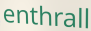
enthrall